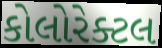
કોલોરેક્ટલ